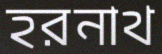
হরনাথ